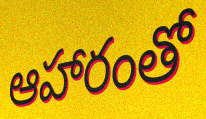
ఆహారంతో